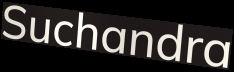
Suchandra